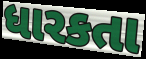
ધારકતા